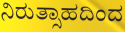
ನಿರುತ್ಸಾಹದಿಂದ